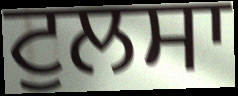
ਟੁਲਸਾ